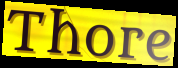
Thore